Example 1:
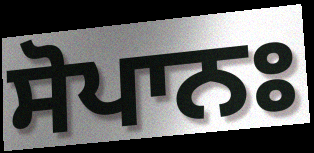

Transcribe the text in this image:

ਸੋਪਾਨਃ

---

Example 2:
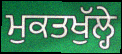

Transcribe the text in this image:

ਮੁਕਤਖੁੱਲ੍ਹੇ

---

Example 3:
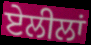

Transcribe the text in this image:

ਏਲੀਲਾਂ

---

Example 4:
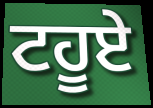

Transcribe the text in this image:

ਟਹੂਏ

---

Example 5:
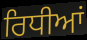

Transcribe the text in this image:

ਰਿਧੀਆਂ